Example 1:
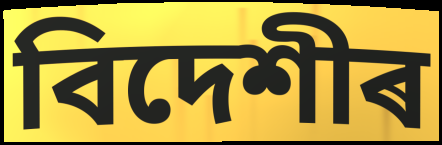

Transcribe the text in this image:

বিদেশীৰ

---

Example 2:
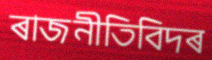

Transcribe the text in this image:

ৰাজনীতিবিদৰ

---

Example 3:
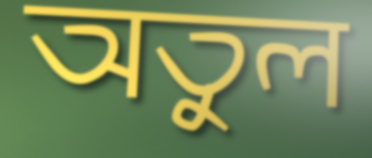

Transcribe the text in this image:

অতুল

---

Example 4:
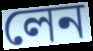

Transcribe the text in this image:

লেন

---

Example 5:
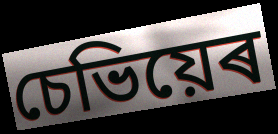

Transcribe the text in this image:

চেভিয়েৰ